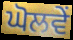
ਘੋਲਵੇਂ